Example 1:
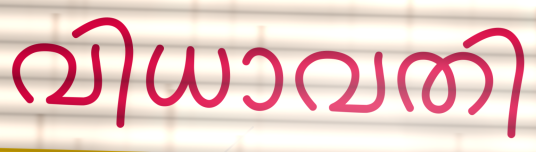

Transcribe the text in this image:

വിധാവതി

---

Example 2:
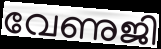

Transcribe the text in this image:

വേണുജി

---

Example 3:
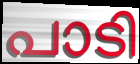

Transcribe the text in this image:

പാടി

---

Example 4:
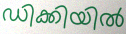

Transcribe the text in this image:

ഡിക്കിയിൽ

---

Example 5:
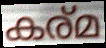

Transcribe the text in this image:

കര്മ